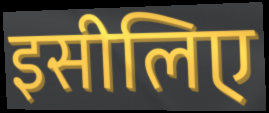
इसीलिए